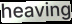
heaving